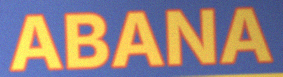
ABANA